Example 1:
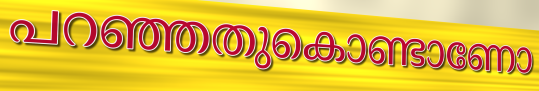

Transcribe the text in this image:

പറഞ്ഞതുകൊണ്ടാണോ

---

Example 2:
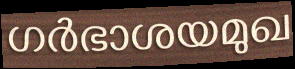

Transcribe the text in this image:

ഗർഭാശയമുഖ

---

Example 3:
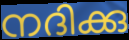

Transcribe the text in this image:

നദിക്കു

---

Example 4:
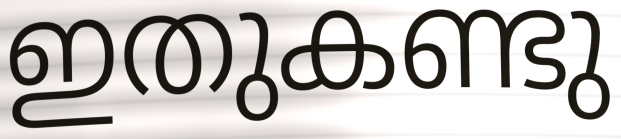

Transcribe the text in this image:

ഇതുകണ്ടു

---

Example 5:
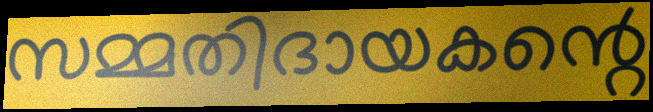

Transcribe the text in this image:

സമ്മതിദായകന്റെ